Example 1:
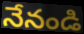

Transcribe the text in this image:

నేనండి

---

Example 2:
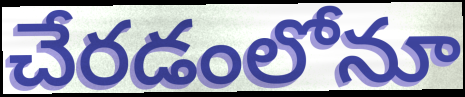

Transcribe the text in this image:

చేరడంలోనూ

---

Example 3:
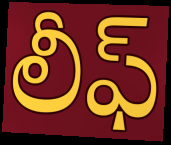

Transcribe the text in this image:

లీఫ్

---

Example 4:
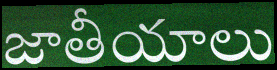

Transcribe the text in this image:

జాతీయాలు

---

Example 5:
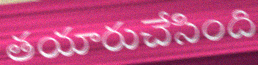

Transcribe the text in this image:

తయారుచేసింది